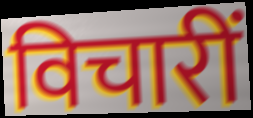
विचारीं